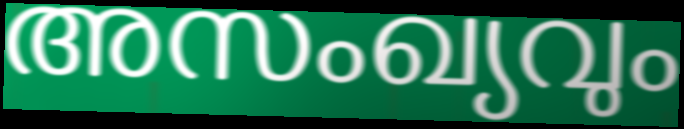
അസംഖ്യവും